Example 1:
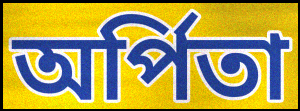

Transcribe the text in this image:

অর্পিতা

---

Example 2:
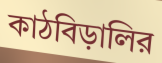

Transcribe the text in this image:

কাঠবিড়ালির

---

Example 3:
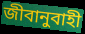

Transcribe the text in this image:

জীবানুবাহী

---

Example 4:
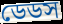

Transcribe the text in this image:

ডেডস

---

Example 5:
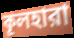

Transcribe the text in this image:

কূলহারা